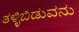
ತಳ್ಳಿಬಿಡುವನು